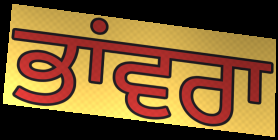
ਭਾਂਵਰਾ